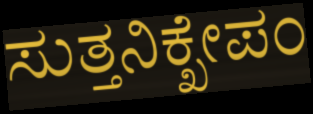
ಸುತ್ತನಿಕ್ಖೇಪಂ